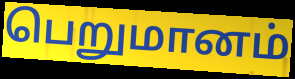
பெறுமானம்